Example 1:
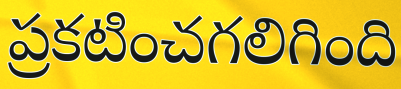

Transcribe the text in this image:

ప్రకటించగలిగింది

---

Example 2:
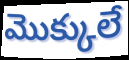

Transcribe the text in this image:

మొక్కులే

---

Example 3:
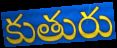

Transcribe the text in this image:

కుతురు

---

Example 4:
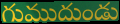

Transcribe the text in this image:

గుముదుండు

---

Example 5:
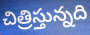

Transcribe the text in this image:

చిత్రిస్తున్నది